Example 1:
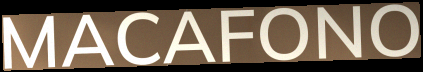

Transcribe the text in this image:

MACAFONO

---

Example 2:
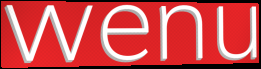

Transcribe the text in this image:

wenu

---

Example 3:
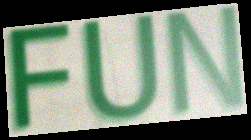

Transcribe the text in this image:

FUN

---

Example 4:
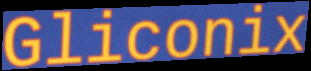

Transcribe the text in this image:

Gliconix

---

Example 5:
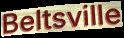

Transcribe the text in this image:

Beltsville